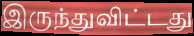
இருந்துவிட்டது